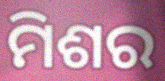
ମିଶର